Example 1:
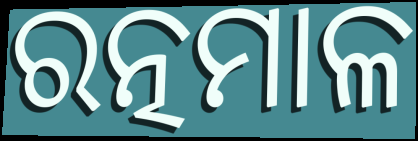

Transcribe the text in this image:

ରତ୍ନମାଳ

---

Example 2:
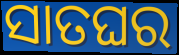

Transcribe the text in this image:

ସାତଘର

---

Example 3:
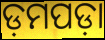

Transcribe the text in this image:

ଡ଼ମପଡ଼ା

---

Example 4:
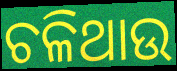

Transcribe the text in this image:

ଚଳିଥାଉ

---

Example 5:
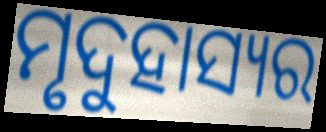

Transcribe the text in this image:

ମୃଦୁହାସ୍ୟର